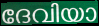
ദേവിയാ